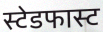
स्टेडफास्ट